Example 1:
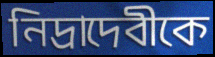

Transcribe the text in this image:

নিদ্রাদেবীকে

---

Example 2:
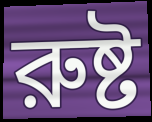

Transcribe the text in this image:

রুষ্ট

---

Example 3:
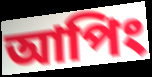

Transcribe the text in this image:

আপিং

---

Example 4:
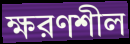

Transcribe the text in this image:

ক্ষরণশীল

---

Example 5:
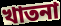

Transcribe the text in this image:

খাতনা